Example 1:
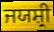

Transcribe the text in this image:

ਜਯਸ਼੍ਰੀ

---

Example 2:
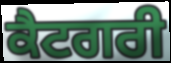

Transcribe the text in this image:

ਕੈਟਗਰੀ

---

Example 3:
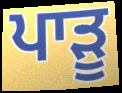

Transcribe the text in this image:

ਪਾੜੂ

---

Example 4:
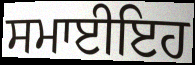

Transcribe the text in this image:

ਸਮਾਈਇਹ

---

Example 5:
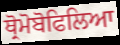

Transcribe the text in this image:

ਥ੍ਰੋਮੋਬੋਫਿਲਿਆ